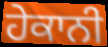
ਹੇਕਾਨੀ